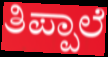
ತಿಪ್ಪಾಲೆ